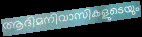
ആദിമനിവാസികളുടെയും